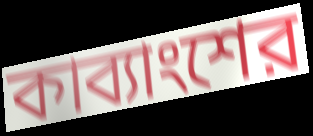
কাব্যাংশের